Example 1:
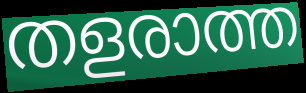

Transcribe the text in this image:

തളരാത്ത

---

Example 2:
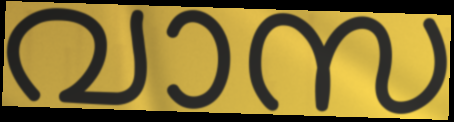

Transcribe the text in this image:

വാസ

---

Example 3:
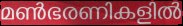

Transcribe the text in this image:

മൺഭരണികളിൽ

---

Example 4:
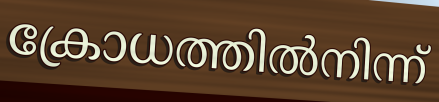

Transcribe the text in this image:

ക്രോധത്തിൽനിന്ന്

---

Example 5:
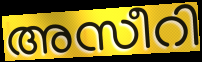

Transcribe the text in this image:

അസീറി